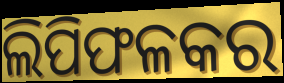
ଲିପିଫଳକର